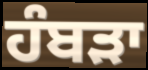
ਹੰਬਡ਼ਾ